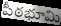
పీఠభూమి